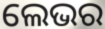
ଲେଭର